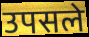
उपसले